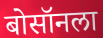
बोसॉनला